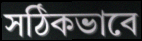
সঠিকভাবে